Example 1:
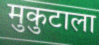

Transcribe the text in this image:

मुकुटाला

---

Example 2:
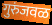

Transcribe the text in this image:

गुरुंजवळ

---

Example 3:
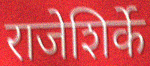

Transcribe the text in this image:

राजेशिर्के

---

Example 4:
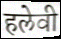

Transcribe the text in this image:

हलेवी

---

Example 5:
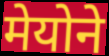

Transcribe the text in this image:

मेयोने